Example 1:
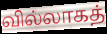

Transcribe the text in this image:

வில்லாகத்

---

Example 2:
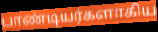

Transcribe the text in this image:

பாண்டியர்களாகிய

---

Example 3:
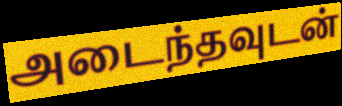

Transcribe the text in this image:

அடைந்தவுடன்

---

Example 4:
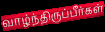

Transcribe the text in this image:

வாழ்ந்திருப்பீர்கள்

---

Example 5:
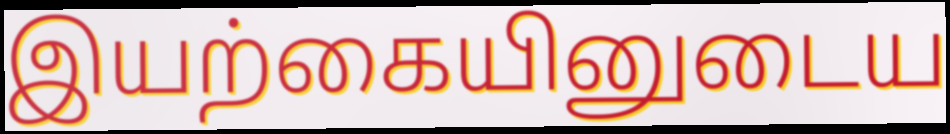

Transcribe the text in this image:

இயற்கையினுடைய